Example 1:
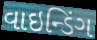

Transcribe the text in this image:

વાઇન્ડિંગ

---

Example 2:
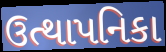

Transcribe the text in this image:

ઉત્થાપનિકા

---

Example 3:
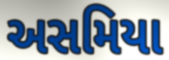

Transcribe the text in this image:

અસમિયા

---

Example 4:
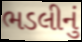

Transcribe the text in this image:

ભડલીનું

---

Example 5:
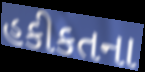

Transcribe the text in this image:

હકીકતના